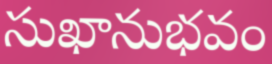
సుఖానుభవం